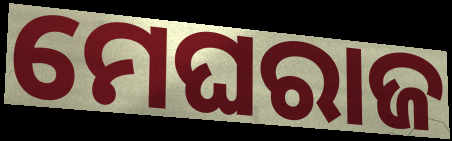
ମେଘରାଜ